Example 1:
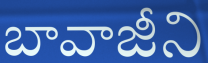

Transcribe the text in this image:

బావాజీని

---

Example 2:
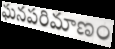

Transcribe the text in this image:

ఘనపరిమాణం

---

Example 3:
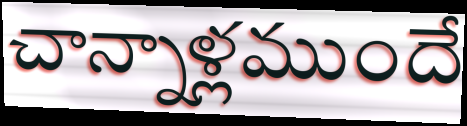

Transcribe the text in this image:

చాన్నాళ్లముందే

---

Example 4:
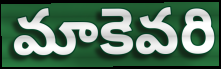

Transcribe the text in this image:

మాకెవరి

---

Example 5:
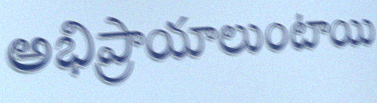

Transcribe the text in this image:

అభిప్రాయాలుంటాయి